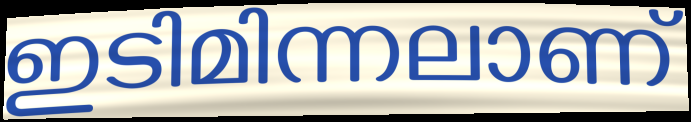
ഇടിമിന്നലാണ്